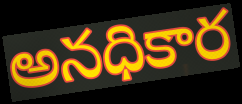
అనధికార